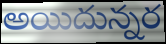
అయిదున్నర